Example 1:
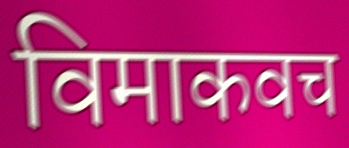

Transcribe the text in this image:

विमाकवच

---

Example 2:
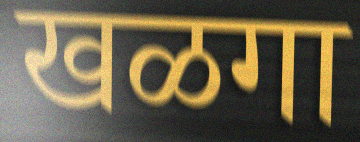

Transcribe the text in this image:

खळगा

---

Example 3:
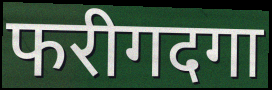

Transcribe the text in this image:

फरीगदगा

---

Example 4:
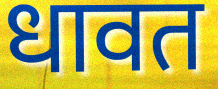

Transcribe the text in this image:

धावत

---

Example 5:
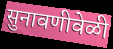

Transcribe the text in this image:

सुनावणीवेळी